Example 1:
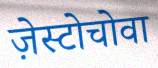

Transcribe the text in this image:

ज़ेस्टोचोवा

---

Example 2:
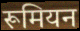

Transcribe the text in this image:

रूमियन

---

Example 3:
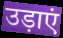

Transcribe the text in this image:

उड़ाएं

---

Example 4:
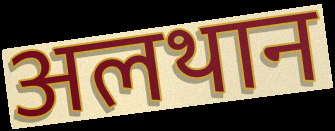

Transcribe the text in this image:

अलथान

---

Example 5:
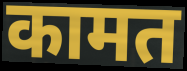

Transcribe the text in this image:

कामत